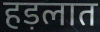
हड़लात